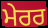
ਮੇਰਰ